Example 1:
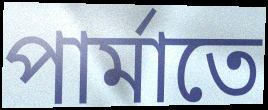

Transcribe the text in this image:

পার্মাতে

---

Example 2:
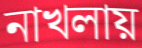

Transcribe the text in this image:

নাখলায়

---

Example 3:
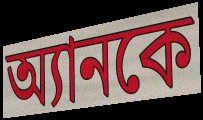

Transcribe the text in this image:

অ্যানকে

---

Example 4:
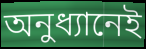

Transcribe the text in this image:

অনুধ্যানেই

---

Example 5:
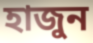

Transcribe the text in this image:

হাজুন